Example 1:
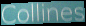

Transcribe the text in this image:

Collines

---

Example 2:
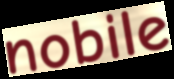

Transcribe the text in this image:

nobile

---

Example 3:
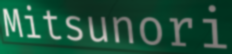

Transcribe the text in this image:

Mitsunori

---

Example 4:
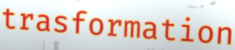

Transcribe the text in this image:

trasformation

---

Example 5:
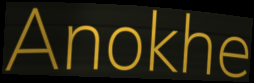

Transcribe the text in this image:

Anokhe